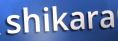
shikara